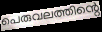
പെരുവലത്തിന്റെ